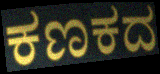
ಕಣಕದ